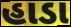
હાડા